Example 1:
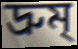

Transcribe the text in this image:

দ্রুম্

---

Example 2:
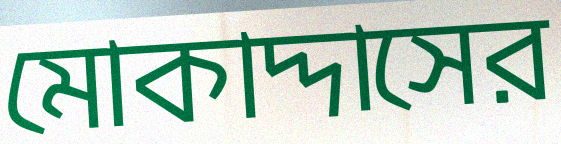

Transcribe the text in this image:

মোকাদ্দাসের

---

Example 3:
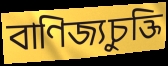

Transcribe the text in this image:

বাণিজ্যচুক্তি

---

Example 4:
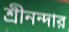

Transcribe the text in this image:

শ্রীনন্দার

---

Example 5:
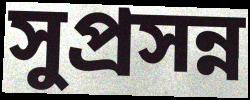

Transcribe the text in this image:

সুপ্রসন্ন